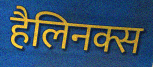
हैलिनक्स